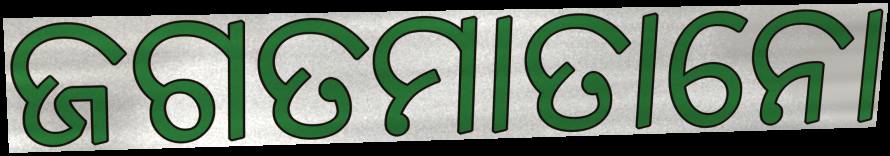
ଜଗତମାତାନୋ